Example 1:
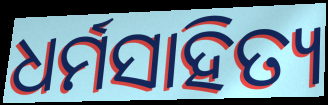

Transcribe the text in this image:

ଧର୍ମସାହିତ୍ୟ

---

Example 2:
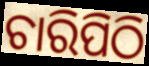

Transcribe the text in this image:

ଚାରିପିଠି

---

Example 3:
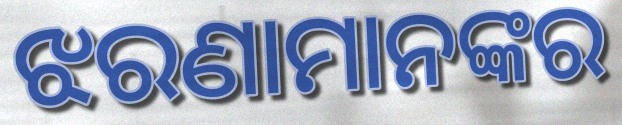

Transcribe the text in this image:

ଝରଣାମାନଙ୍କର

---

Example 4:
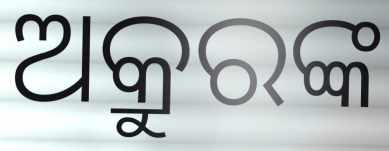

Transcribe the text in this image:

ଅକ୍ରୁରଙ୍କ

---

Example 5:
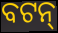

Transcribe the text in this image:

ବଟନ୍